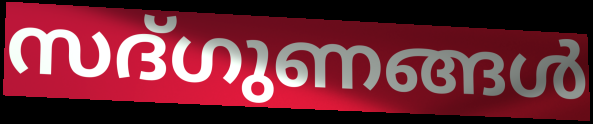
സദ്ഗുണങ്ങൾ